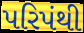
પરિપંથી